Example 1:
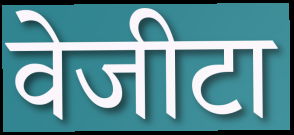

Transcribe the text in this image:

वेजीटा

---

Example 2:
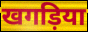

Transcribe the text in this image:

खगड़िया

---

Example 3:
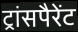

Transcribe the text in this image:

ट्रांसपैरेंट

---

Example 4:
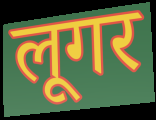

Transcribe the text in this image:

लूगर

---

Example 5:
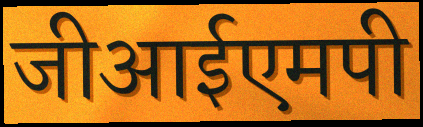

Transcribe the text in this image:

जीआईएमपी